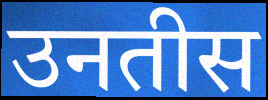
उनतीस